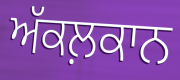
ਅੱਕਲ਼ਕਾਨ